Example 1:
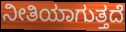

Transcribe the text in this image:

ನೀತಿಯಾಗುತ್ತದೆ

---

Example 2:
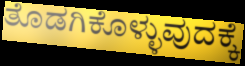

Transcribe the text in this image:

ತೊಡಗಿಕೊಳ್ಳುವುದಕ್ಕೆ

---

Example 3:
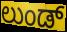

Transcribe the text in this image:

ಲುಂಡ್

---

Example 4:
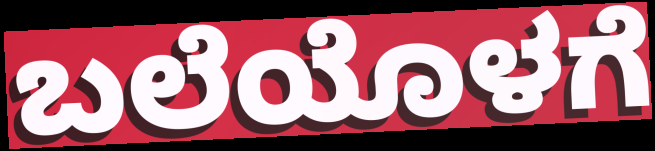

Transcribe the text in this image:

ಬಲೆಯೊಳಗೆ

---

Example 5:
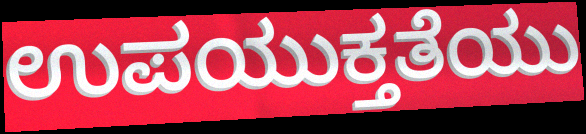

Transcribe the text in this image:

ಉಪಯುಕ್ತತೆಯು